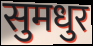
सुमधुर